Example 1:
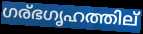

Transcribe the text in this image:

ഗര്ഭഗൃഹത്തില്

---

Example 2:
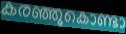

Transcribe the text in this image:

കരഞ്ഞുകൊണ്ടാ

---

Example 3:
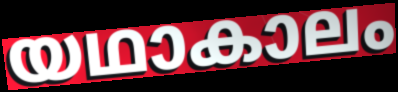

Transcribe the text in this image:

യഥാകാലം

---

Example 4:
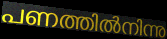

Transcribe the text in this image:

പണത്തിൽനിന്നു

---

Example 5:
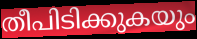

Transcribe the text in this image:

തീപിടിക്കുകയും